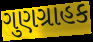
ગુણગ્રાહક